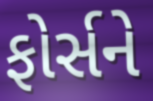
ફોર્સને